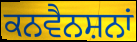
ਕਨਵੈਨਸ਼ਨਾਂ